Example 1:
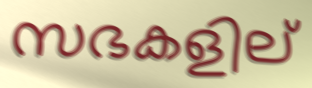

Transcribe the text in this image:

സഭകളില്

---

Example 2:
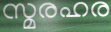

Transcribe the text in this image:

സ്മരഹര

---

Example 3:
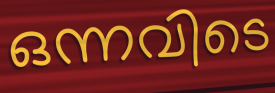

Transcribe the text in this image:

ഒന്നവിടെ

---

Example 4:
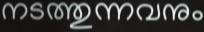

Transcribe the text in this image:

നടത്തുന്നവനും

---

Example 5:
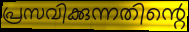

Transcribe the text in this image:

പ്രസവിക്കുന്നതിന്റെ